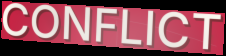
CONFLICT